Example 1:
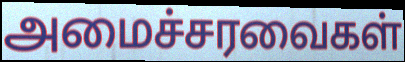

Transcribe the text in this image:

அமைச்சரவைகள்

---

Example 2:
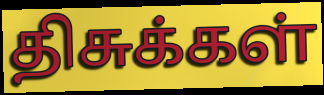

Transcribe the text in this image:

திசுக்கள்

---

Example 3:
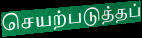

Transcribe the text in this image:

செயற்படுத்தப்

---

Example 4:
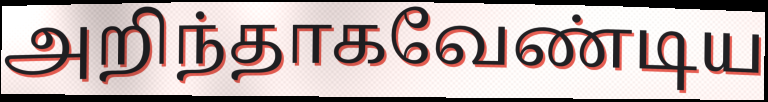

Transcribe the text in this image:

அறிந்தாகவேண்டிய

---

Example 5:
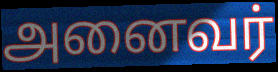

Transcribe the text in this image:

அனைவர்